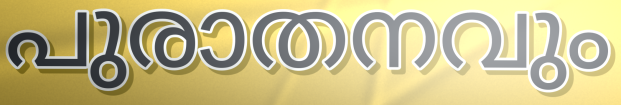
പുരാതനവും